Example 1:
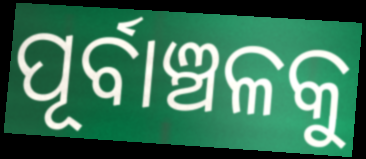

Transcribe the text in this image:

ପୂର୍ବାଞ୍ଚଳକୁ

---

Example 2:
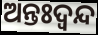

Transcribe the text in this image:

ଅନ୍ତଃଦ୍ବନ୍ଦ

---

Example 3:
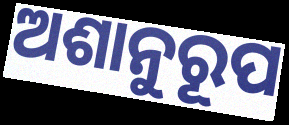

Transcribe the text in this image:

ଅଶାନୁରୂପ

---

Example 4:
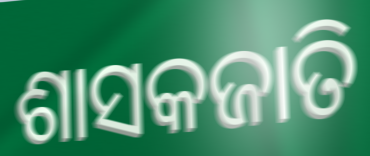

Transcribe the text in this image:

ଶାସକଜାତି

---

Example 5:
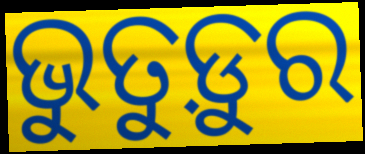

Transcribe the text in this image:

ଭୁତୁଡ଼ୁର